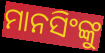
ମାନସିଂଙ୍କୁ